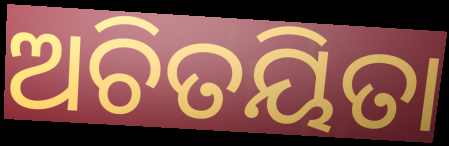
ଅଚିତୟିତା